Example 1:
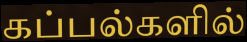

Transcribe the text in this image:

கப்பல்களில்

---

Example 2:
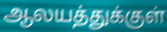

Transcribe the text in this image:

ஆலயத்துக்குள்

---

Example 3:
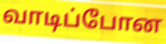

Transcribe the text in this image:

வாடிப்போன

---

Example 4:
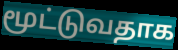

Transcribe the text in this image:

மூட்டுவதாக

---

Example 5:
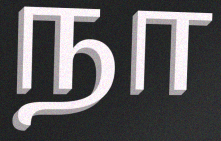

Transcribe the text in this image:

நா